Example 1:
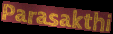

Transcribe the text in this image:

Parasakthi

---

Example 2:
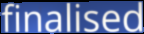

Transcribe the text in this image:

finalised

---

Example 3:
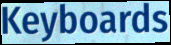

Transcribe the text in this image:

Keyboards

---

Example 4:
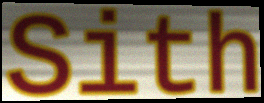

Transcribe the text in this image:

Sith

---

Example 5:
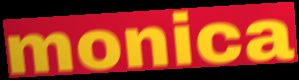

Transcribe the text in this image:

monica